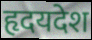
हृदयदेश